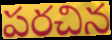
పరచిన